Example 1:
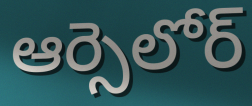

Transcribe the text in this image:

ఆర్సెలోర్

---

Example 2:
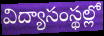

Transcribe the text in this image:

విద్యాసంస్థల్లో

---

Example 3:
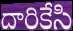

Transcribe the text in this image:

దారికేసి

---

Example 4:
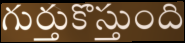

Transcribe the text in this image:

గుర్తుకొస్తుంది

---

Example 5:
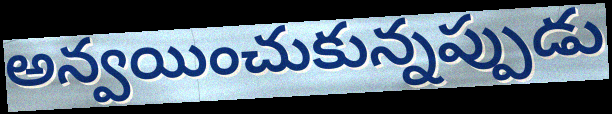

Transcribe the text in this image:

అన్వయించుకున్నప్పుడు